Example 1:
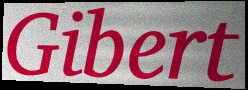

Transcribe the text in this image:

Gibert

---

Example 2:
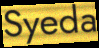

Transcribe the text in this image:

Syeda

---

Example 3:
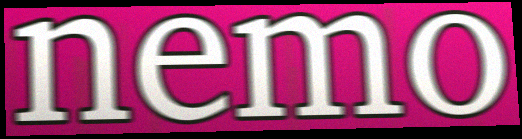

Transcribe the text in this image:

nemo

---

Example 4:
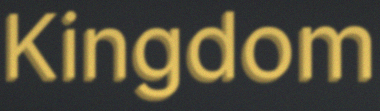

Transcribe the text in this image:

Kingdom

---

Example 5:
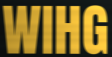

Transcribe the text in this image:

WIHG